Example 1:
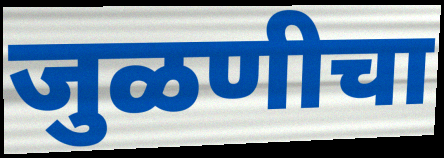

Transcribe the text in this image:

जुळणीचा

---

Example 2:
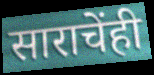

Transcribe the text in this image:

साराचेंही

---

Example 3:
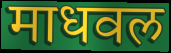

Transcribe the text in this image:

माधवल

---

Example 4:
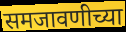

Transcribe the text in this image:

समजावणीच्या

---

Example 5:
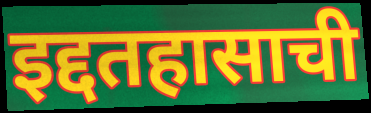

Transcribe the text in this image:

इद्दतहासाची